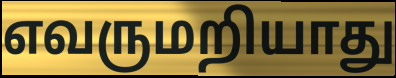
எவருமறியாது